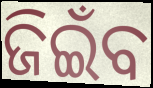
ଜିଇଁବ